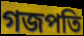
গজপতি